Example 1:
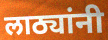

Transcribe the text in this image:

लाठ्यांनी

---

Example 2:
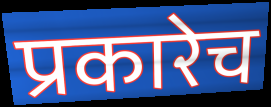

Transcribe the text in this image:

प्रकारेच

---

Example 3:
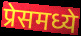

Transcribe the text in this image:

प्रेसमध्ये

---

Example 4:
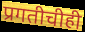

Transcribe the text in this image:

प्रगतीचीही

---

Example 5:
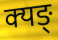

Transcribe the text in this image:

क्यङ्